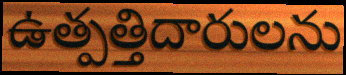
ఉత్పత్తిదారులను